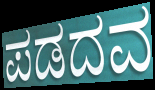
ಪಡದವ